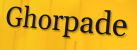
Ghorpade